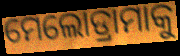
ମେଲୋଡ୍ରାମାକୁ